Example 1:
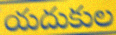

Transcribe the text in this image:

యదుకుల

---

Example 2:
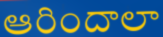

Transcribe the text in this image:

ఆరిందాలా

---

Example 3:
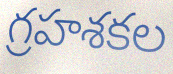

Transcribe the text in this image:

గ్రహశకల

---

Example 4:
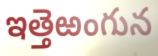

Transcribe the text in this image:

ఇత్తెఱంగున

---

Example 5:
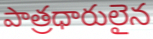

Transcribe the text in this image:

పాత్రధారులైన